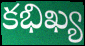
కభిఖ్య